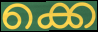
ക്കെ